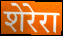
शेरेरा